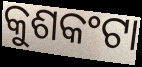
କୁଶକଂଟା